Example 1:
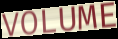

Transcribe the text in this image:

VOLUME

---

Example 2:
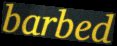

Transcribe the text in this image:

barbed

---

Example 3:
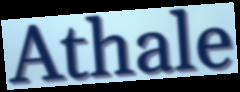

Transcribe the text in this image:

Athale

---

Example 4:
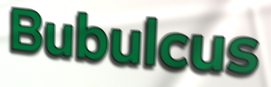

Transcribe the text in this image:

Bubulcus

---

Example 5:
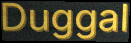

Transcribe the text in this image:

Duggal